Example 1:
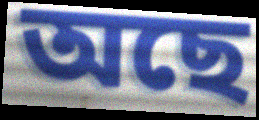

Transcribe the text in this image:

অছে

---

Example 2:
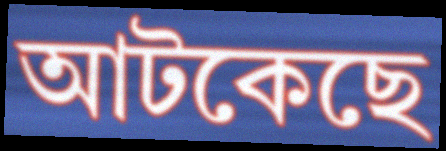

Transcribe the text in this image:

আটকেছে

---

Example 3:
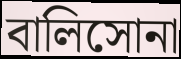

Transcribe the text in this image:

বালিসোনা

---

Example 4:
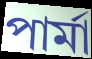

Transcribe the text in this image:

পার্মা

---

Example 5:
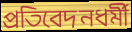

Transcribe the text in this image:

প্রতিবেদনধর্মী